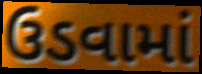
ઉડવામાં